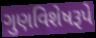
ગુણવિશેષરૂપે